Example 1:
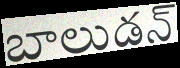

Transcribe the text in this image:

బాలుడన్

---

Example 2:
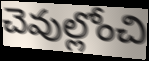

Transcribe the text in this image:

చెవుల్లోంచి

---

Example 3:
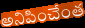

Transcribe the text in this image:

అనిపించేంత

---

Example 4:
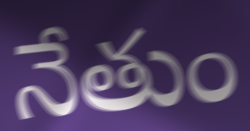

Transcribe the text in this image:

నేతుం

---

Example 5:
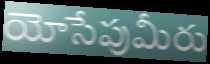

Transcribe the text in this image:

యోసేపుమీరు